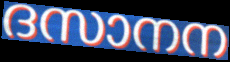
ദസാനന